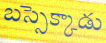
బస్సెక్కాడు